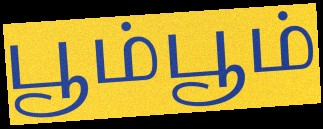
பூம்பூம்